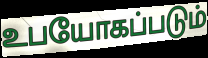
உபயோகப்படும்